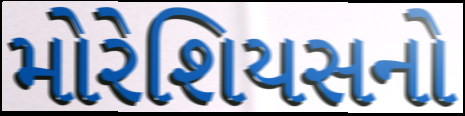
મોરેશિયસનો